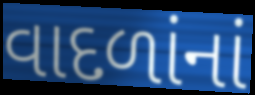
વાદળાંનાં